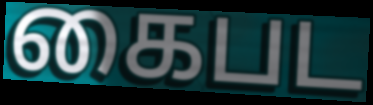
கைபட